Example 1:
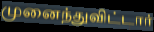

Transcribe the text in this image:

முனைந்துவிட்டார்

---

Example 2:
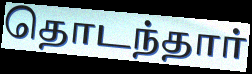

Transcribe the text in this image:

தொடந்தார்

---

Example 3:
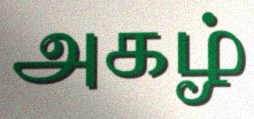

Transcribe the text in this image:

அகழ்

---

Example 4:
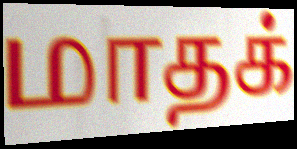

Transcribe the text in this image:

மாதக்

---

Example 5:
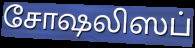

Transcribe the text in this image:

சோஷலிஸப்